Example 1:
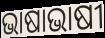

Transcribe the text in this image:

ଭାଷାଭାଷୀ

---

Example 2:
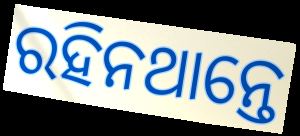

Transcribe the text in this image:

ରହିନଥାନ୍ତେ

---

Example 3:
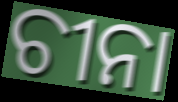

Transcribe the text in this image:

ଚୀନା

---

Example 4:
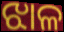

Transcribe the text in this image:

ଝାଳ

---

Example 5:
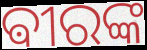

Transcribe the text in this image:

ଵୀରଙ୍କ